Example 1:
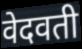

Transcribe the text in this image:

वेदवती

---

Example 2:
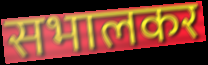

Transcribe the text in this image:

सभालकर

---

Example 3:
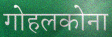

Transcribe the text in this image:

गोहलकोना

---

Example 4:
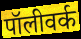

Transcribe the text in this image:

पॉलीवर्क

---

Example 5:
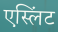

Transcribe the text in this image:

एस्लिंट